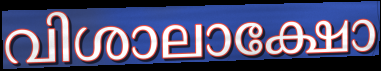
വിശാലാക്ഷോ